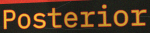
Posterior